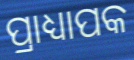
ପ୍ରାଧ୍ୟାପକ